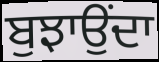
ਬੁਝਾਉਂਦਾ